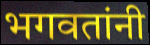
भगवतांनी